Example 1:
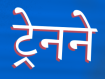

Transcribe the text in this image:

ट्रेनने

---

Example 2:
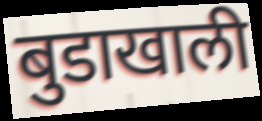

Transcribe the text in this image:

बुडाखाली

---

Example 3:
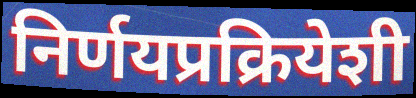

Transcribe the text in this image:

निर्णयप्रक्रियेशी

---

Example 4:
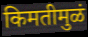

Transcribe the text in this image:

किमतीमुळं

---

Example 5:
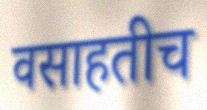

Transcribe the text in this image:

वसाहतीच